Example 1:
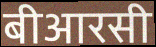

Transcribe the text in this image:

बीआरसी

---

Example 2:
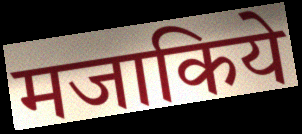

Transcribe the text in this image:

मजाकिये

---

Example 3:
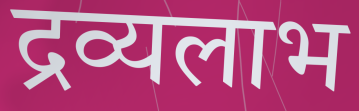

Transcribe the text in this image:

द्रव्यलाभ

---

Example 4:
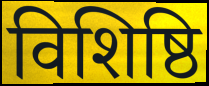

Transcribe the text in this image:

विशिष्ठि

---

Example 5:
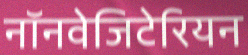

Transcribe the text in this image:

नॉनवेजिटेरियन